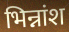
भिन्नांश